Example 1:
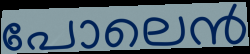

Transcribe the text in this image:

പോലെൻ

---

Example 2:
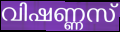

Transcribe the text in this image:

വിഷണ്ണസ്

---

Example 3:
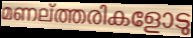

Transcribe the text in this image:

മണല്ത്തരികളോടു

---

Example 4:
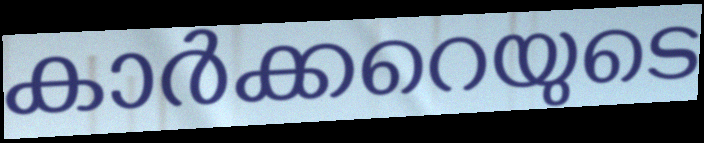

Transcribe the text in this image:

കാർക്കറെയുടെ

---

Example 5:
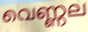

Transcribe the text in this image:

വെണ്ണല